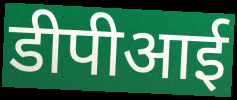
डीपीआई